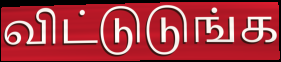
விட்டுடுங்க